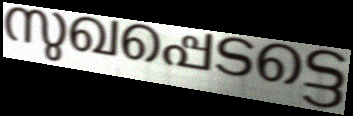
സുഖപ്പെടട്ടെ